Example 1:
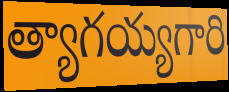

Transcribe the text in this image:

త్యాగయ్యగారి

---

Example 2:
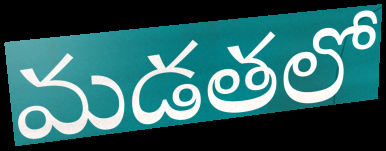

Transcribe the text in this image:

మడతలో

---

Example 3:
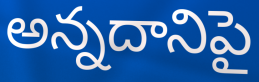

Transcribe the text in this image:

అన్నదానిపై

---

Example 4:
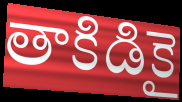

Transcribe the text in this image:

తాకిడికై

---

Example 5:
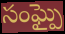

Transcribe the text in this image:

సంఘ్పై